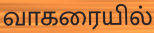
வாகரையில்